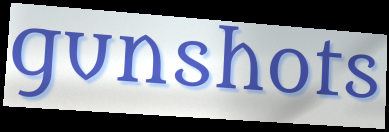
gunshots